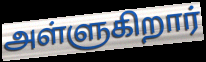
அள்ளுகிறார்